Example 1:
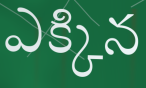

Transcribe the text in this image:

ఎక్కిన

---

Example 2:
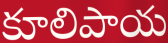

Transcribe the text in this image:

కూలిపాయ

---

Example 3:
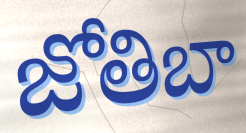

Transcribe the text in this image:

జోతిబా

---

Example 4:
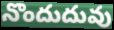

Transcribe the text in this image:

నొందుదువు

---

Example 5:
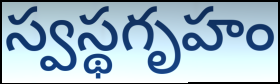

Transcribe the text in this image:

స్వస్థగృహం